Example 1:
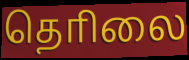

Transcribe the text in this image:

தெரிலை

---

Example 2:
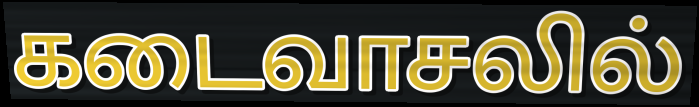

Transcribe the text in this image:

கடைவாசலில்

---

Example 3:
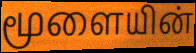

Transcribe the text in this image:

மூளையின்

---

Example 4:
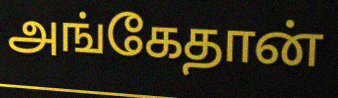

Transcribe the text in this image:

அங்கேதான்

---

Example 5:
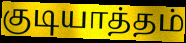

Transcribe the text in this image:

குடியாத்தம்